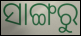
ସାଙ୍ଗରୁ